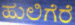
ಹುಲಿಗೆರೆ